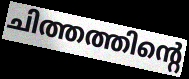
ചിത്തത്തിന്റെ